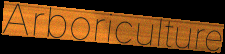
Arboriculture